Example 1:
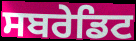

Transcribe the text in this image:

ਸਬਰੇਡਿਟ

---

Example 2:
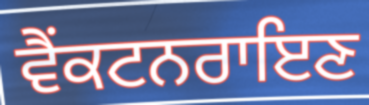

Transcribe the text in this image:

ਵੈਂਕਟਨਰਾਇਣ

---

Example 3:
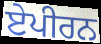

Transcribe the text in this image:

ਏਪੀਰਨ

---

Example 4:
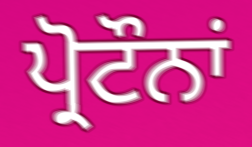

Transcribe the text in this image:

ਪ੍ਰੋਟੌਨਾਂ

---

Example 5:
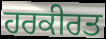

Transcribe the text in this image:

ਹਰਕੀਰਤ